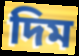
দিম